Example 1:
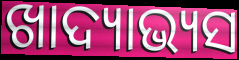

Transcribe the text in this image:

ଖାଦ୍ୟାଭ୍ୟସ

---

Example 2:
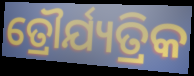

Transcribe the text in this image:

ତ୍ରୌର୍ଯ୍ୟତ୍ରିକ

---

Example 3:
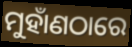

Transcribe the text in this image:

ମୁହାଁଣଠାରେ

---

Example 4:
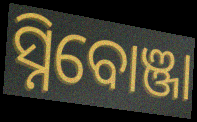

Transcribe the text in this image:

ସ୍ନିବୋଞ୍ଜା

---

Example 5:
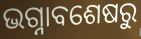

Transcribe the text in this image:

ଭଗ୍ନାବଶେଷରୁ